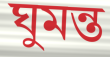
ঘুমন্ত